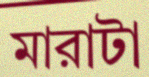
মারাটা